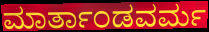
ಮಾರ್ತಾಂಡವರ್ಮ